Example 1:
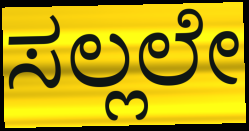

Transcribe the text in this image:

ಸಲ್ಲಲೇ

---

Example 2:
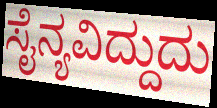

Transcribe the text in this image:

ಸೈನ್ಯವಿದ್ದುದು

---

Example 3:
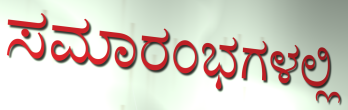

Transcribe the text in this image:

ಸಮಾರಂಭಗಳಲ್ಲಿ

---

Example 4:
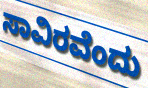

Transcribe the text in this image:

ಸಾವಿರವೆಂದು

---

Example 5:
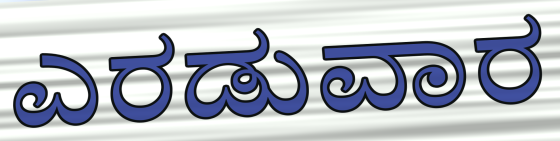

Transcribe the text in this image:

ಎರಡುವಾರ